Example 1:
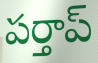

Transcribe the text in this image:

పర్తాప్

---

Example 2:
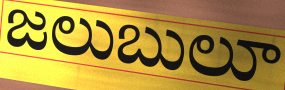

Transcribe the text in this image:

జలుబులూ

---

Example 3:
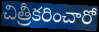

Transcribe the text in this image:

చిత్రీకరించారో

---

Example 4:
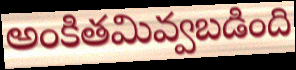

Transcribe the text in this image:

అంకితమివ్వబడింది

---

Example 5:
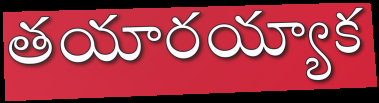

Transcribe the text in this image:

తయారయ్యాక